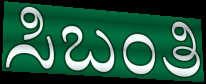
ಸಿಬಂತಿ